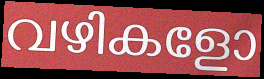
വഴികളോ